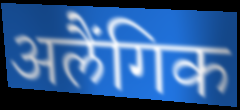
अलैंगिक